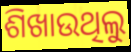
ଶିଖାଉଥିଲୁ